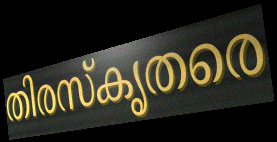
തിരസ്കൃതരെ